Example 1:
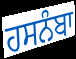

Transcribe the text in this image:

ਹਸਨੰਬਾ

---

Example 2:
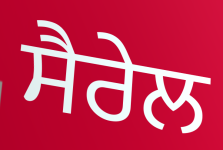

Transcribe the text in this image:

ਸੈਰੇਲ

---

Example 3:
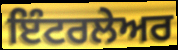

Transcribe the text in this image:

ਇੰਟਰਲੇਅਰ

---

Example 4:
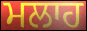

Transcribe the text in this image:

ਮਲਾਹ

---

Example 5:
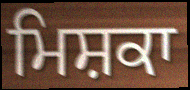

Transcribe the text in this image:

ਮਿਸ਼ਕਾ